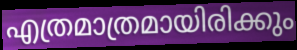
എത്രമാത്രമായിരിക്കും